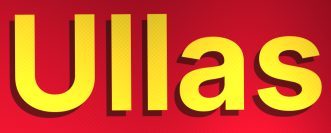
Ullas